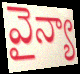
వైన్యా